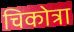
चिकोत्रा